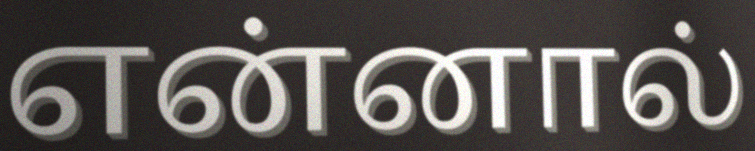
என்னால்